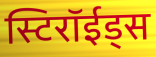
स्टिरॉईड्स